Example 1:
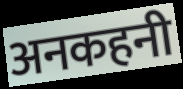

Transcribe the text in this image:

अनकहनी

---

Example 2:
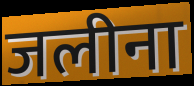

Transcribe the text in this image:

जलीना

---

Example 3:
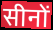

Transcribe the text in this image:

सीनों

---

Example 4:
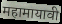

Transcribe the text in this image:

महामायावी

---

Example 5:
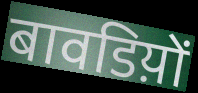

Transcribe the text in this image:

बावडिय़ों